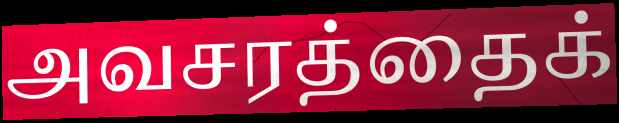
அவசரத்தைக்